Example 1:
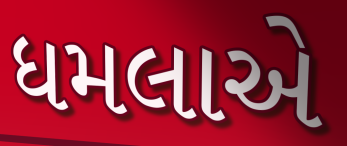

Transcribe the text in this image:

ધમલાએ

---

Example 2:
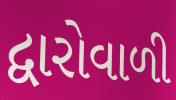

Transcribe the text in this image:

દ્વારોવાળી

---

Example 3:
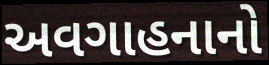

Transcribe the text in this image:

અવગાહનાનો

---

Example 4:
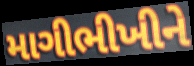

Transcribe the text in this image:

માગીભીખીને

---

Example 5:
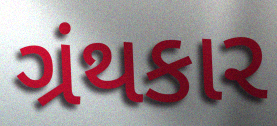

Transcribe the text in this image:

ગ્રંથકાર